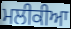
ਮਲੀਕੀਆ